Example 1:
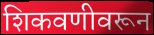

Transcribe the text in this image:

शिकवणीवरून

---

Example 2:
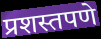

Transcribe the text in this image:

प्रशस्तपणे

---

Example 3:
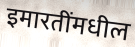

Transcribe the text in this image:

इमारतींमधील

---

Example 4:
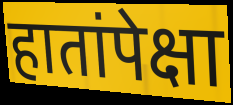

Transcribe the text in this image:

हातांपेक्षा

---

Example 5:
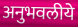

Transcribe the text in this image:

अनुभवलीये